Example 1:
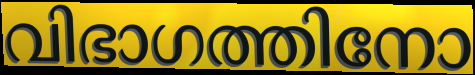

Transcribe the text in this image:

വിഭാഗത്തിനോ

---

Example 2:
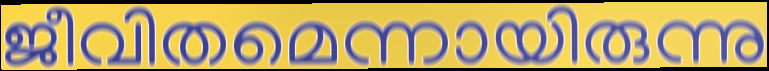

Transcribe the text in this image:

ജീവിതമെന്നായിരുന്നു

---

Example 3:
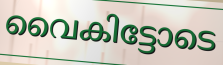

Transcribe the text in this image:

വൈകിട്ടോടെ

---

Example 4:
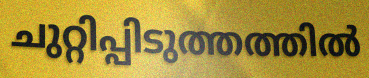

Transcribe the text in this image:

ചുറ്റിപ്പിടുത്തത്തിൽ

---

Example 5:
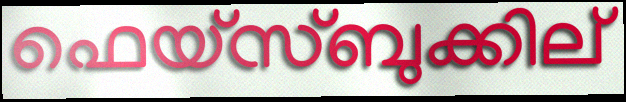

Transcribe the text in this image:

ഫെയ്സ്ബുക്കില്